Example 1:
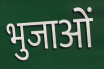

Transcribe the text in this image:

भुजाओं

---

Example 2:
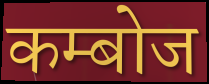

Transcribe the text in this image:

कम्बोज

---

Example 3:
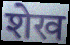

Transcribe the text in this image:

शेख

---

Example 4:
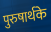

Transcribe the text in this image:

पुरुषार्थके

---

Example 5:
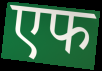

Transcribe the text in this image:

एफ